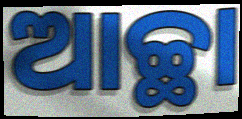
ଆଚ୍ଛା